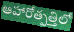
ఆహారోత్పత్తిలో